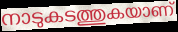
നാടുകടത്തുകയാണ്